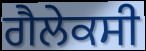
ਗੈਲੇਕਸੀ